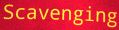
Scavenging